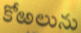
కోఱలును